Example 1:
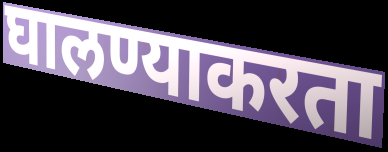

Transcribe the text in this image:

घालण्याकरता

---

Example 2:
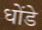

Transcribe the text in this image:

धोंडे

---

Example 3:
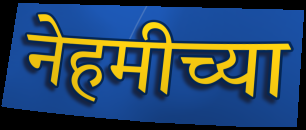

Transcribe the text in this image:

नेहमीच्या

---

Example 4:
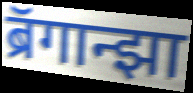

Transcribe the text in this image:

ब्रॅगान्झा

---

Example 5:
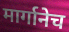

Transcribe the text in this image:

मार्गानेच